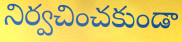
నిర్వచించకుండా